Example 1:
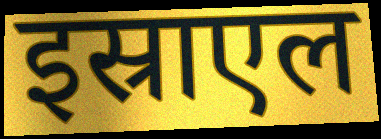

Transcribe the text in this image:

इस्राएल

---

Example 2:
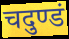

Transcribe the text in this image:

चदुण्डं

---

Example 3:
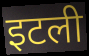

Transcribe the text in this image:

इटली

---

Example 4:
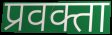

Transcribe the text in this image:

प्रवक्ता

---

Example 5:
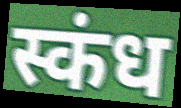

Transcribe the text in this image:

स्कंध